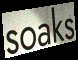
soaks